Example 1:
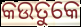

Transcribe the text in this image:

କଉତୁକେ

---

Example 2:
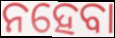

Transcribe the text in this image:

ନହେବା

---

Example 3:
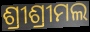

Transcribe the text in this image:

ଶ୍ରୀଶ୍ରୀମଲ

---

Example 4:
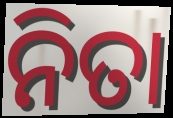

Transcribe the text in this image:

ନିତା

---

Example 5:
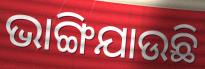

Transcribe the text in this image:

ଭାଙ୍ଗିଯାଉଛି